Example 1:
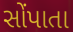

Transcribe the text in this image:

સોંપાતા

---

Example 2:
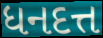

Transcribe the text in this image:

ધનદત્ત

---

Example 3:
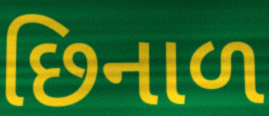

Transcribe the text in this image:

છિનાળ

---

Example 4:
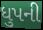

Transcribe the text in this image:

ધુપની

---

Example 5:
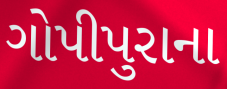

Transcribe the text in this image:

ગોપીપુરાના